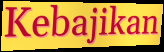
Kebajikan